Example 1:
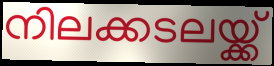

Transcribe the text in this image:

നിലക്കടലയ്ക്ക്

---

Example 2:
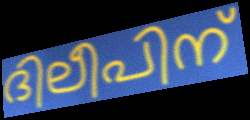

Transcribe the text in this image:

ദിലീപിന്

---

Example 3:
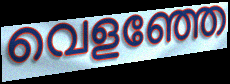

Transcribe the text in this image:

വെളഞ്ഞേ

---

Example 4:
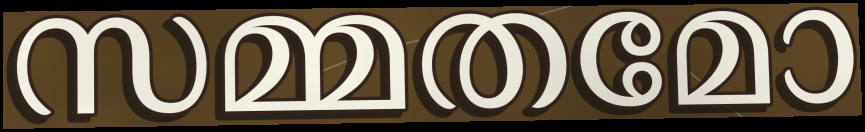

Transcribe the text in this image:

സമ്മതമോ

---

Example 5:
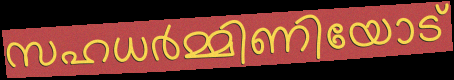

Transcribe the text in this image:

സഹധർമ്മിണിയോട്